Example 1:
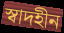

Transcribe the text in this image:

স্বাদহীন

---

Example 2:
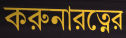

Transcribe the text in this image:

করুনারত্নের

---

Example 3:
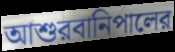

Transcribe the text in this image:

আশুরবানিপালের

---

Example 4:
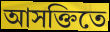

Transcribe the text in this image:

আসক্তিতে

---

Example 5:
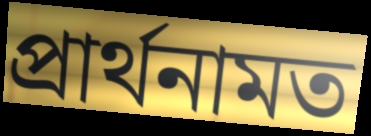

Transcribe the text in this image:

প্রার্থনামত